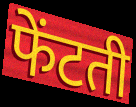
फेंटती